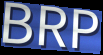
BRP